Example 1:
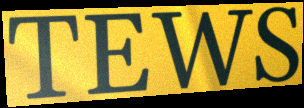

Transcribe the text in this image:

TEWS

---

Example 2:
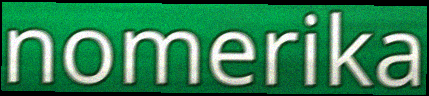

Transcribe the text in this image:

nomerika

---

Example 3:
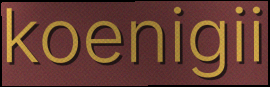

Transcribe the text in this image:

koenigii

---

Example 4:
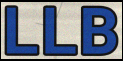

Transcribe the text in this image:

LLB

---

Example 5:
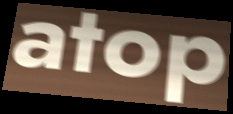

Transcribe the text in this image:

atop